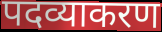
पदव्याकरण